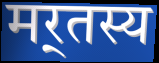
मर्तस्य